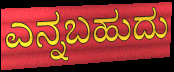
ಎನ್ನಬಹುದು